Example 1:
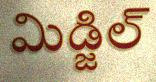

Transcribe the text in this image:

మిడ్జిల్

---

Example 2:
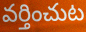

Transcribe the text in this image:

వర్తించుట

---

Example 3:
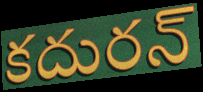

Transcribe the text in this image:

కదురన్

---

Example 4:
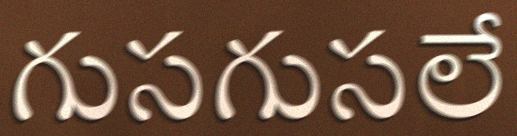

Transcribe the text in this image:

గుసగుసలే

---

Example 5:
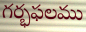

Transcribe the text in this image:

గర్భఫలము